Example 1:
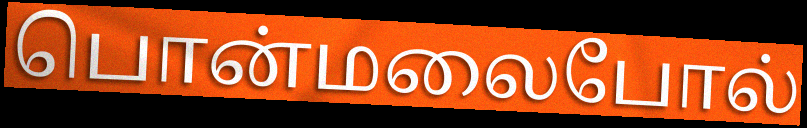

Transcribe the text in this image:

பொன்மலைபோல்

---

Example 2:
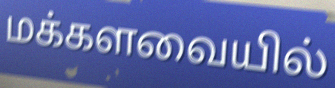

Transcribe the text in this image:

மக்களவையில்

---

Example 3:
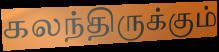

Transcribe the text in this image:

கலந்திருக்கும்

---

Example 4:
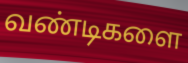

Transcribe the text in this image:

வண்டிகளை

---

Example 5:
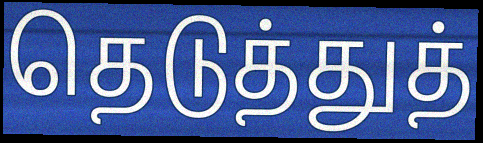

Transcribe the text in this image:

தெடுத்துத்